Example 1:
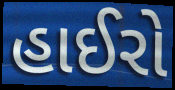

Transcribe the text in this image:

હાઈરો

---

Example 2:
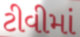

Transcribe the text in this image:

ટીવીમાં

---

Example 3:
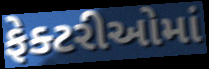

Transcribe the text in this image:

ફેક્ટરીઓમાં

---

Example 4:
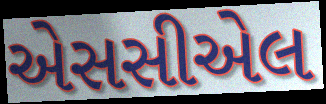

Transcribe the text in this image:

એસસીએલ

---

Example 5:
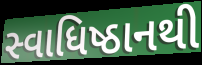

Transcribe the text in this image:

સ્વાધિષ્ઠાનથી